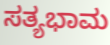
ಸತ್ಯಭಾಮ